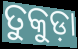
ତୁକୁଡ଼ା